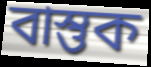
বাস্তুক